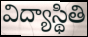
విద్యాస్థితి